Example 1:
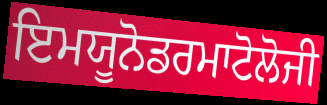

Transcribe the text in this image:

ਇਮਯੂਨੋਡਰਮਾਟੋਲੋਜੀ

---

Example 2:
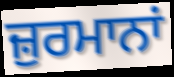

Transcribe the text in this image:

ਜ਼ੁਰਮਾਨਾਂ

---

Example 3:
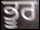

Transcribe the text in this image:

ਭੂਰ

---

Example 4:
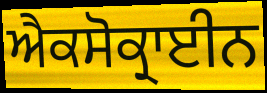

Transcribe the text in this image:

ਐਕਸੋਕ੍ਰਾਈਨ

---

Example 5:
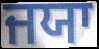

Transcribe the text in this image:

ਜਯਾ